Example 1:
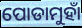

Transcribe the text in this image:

ପୋଡାମୁହାଁ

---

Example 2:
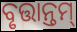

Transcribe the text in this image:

ବୃତ୍ତାନ୍ତମ୍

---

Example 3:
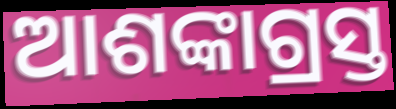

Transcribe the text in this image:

ଆଶଙ୍କାଗ୍ରସ୍ତ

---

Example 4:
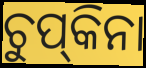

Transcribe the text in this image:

ଚୁପ୍‌କିନା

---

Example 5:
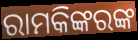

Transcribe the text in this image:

ରାମକିଙ୍କରଙ୍କ